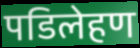
पडिलेहण